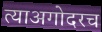
त्याअगोदरच